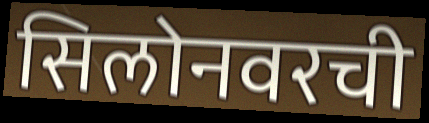
सिलोनवरची